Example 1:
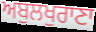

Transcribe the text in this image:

ਅਬੁਲਖੁਰਾਣਾ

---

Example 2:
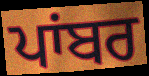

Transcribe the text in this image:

ਪਾਂਬਰ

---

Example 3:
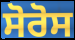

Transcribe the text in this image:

ਸੋਰੋਸ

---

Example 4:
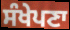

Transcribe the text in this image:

ਸੰਖੇਪਣਾ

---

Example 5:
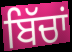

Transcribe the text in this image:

ਬਿੱਚਾਂ